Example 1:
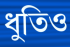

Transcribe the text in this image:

ধুতিও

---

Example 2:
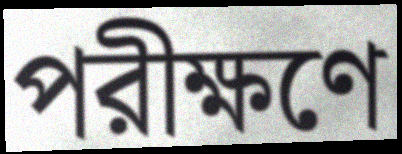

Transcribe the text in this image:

পরীক্ষণে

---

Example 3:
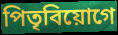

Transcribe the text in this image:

পিতৃবিয়োগে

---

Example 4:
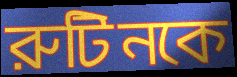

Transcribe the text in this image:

রুটিনকে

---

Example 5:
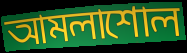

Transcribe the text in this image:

আমলাশোল